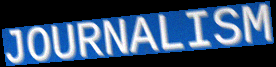
JOURNALISM